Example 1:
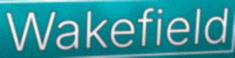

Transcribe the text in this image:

Wakefield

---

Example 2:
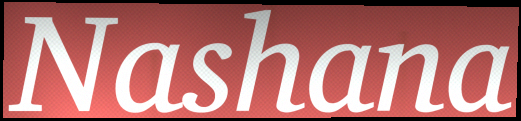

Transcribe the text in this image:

Nashana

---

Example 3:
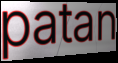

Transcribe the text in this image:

patan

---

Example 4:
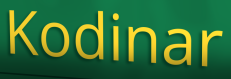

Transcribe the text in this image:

Kodinar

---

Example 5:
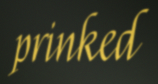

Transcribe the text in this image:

prinked